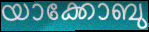
യാക്കോബു